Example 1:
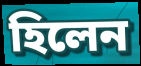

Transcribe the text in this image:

হিলেন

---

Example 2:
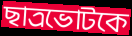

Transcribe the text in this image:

ছাত্রভোটকে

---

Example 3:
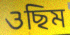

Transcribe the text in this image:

ওছিম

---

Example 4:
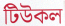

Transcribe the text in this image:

টিউকল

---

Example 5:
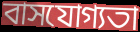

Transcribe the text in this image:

বাসযোগ্যতা